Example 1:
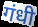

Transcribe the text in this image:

गंधी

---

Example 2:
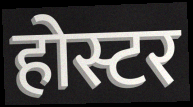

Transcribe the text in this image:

होस्टर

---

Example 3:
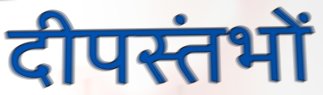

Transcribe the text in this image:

दीपस्तंभों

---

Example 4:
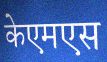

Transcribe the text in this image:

केएमएस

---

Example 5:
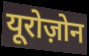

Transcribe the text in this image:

यूरोज़ोन